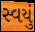
સ્વયું